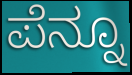
ಪೆನ್ನೂ